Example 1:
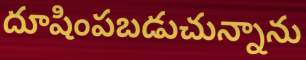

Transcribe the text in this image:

దూషింపబడుచున్నాను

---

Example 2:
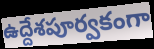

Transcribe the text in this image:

ఉద్దేశపూర్వకంగా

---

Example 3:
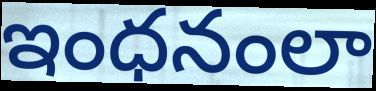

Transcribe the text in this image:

ఇంధనంలా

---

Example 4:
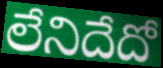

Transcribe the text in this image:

లేనిదేదో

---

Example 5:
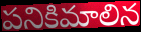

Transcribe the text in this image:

పనికిమాలిన